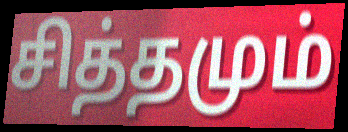
சித்தமும்